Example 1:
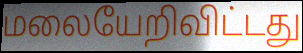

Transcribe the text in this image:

மலையேறிவிட்டது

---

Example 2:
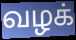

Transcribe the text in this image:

வழக்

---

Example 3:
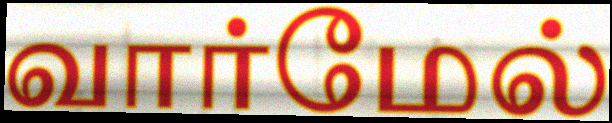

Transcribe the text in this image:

வார்மேல்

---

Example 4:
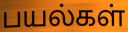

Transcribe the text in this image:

பயல்கள்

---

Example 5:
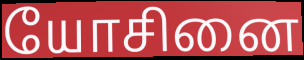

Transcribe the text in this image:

யோசினை